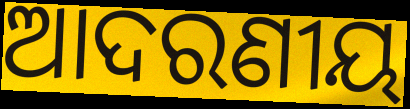
ଆଦରଣୀୟ